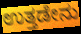
ಉತ್ತಡೇನು